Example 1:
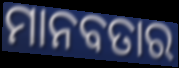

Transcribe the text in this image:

ମାନବତାର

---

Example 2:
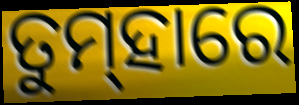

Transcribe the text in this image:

ତୁମ୍‌ହାରେ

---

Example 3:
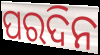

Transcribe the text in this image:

ପରଦିନ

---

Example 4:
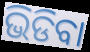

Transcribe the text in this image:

ଭିଡିବା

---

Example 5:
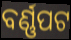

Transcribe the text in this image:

ବର୍ଣ୍ଣପଟ